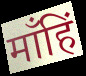
माँहिं